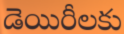
డెయిరీలకు